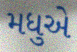
મધુએ